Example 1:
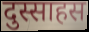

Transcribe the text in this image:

दुस्साहस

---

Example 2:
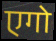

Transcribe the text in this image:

एगो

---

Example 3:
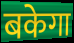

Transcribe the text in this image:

बकेगा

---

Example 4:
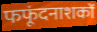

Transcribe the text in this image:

फफूंदनाशकों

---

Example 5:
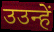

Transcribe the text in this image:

उउन्हें